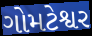
ગોમટેશ્વર